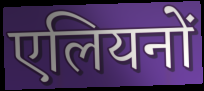
एलियनों